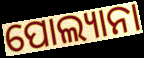
ପୋଲ୍ୟାନା